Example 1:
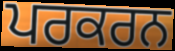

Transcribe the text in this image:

ਪਰਕਰਨ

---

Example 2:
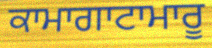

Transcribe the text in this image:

ਕਾਮਾਗਾਟਾਮਾਰੂ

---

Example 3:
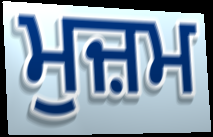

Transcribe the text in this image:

ਮੁਜ਼ਮ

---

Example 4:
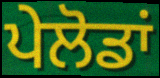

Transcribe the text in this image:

ਪੇਲੋਡਾਂ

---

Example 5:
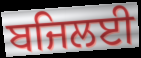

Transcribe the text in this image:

ਬਜਿਲਈ